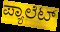
ಪ್ಯಾಲೆಟ್